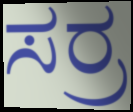
ಸರ್ರ